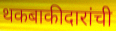
थकबाकीदारांची